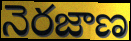
నెరజాణ